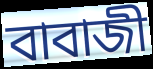
বাবাজী